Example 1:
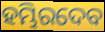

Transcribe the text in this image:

ହମ୍ଭିରଦେବ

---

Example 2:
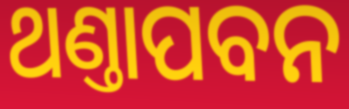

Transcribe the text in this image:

ଥଣ୍ତାପବନ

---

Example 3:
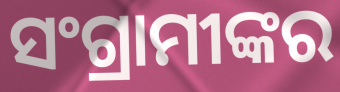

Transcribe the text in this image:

ସଂଗ୍ରାମୀଙ୍କର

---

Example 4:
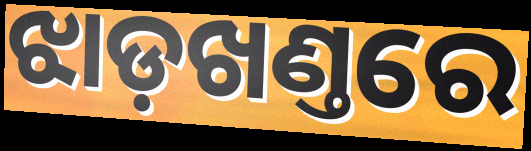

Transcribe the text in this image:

ଝାଡ଼ଖଣ୍ତରେ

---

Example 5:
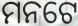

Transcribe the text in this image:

ମନଟେ